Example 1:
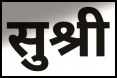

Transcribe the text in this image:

सुश्री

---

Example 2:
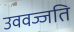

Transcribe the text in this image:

उववज्जति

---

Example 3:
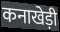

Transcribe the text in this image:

कनाखेड़ी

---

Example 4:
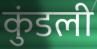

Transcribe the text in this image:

कुंडली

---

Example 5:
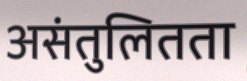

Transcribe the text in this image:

असंतुलितता